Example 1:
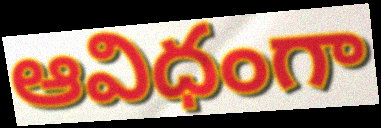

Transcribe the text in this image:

ఆవిధంగా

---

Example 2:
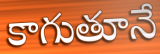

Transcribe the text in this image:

కాగుతూనే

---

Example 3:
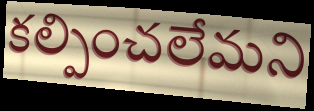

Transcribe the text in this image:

కల్పించలేమని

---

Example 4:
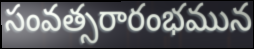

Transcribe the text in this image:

సంవత్సరారంభమున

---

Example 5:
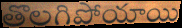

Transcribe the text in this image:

తొలగిపోయాయి